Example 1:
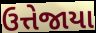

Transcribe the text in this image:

ઉત્તેજાયા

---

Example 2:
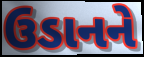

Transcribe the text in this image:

ઉડાનને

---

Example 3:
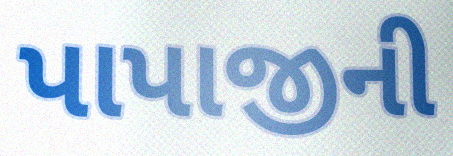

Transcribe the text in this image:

પાપાજીની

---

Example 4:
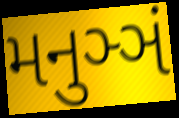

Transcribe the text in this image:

મનુઞ્ઞં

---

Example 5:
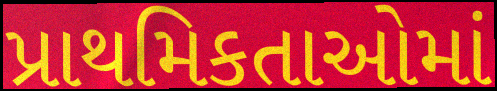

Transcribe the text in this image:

પ્રાથમિકતાઓમાં